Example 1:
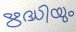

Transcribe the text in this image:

ഋദ്ധിയും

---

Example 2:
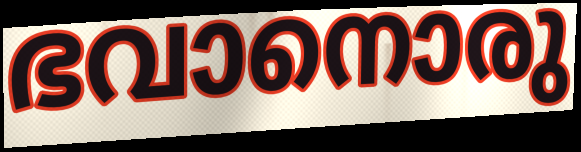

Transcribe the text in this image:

ഭവാനൊരു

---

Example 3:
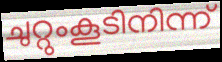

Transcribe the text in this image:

ചുറ്റുംകൂടിനിന്ന്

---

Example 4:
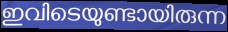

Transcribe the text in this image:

ഇവിടെയുണ്ടായിരുന്ന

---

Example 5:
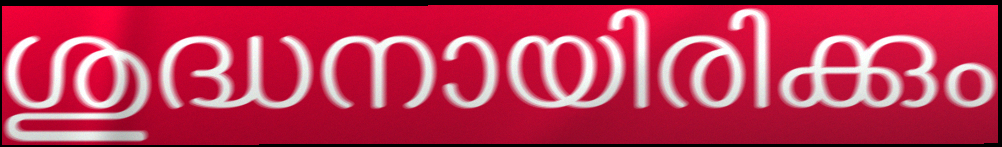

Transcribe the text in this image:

ശുദ്ധനായിരിക്കും